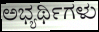
ಅಭ್ಯರ್ಥಿಗಳು